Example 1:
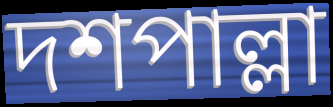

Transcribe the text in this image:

দশপাল্লা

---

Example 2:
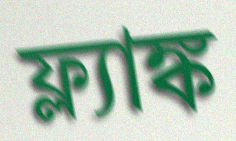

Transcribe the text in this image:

ফ্ল্যাঙ্ক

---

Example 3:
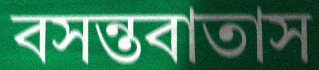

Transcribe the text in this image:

বসন্তবাতাস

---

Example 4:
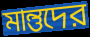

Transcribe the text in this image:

মান্তুদের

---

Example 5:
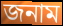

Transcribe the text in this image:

জনাম